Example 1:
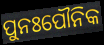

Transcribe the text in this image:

ପୁନଃପୌନିକ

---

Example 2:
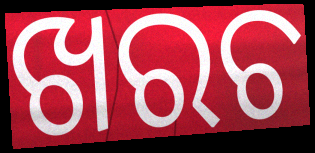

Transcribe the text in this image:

ଖରଚ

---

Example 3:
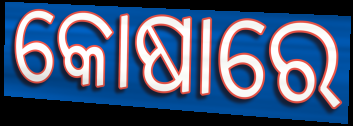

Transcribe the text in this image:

କୋଷାରେ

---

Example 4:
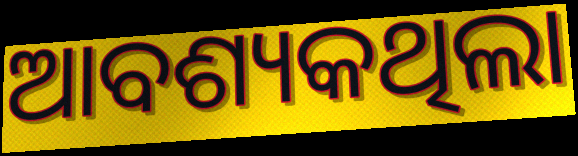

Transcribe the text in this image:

ଆବଶ୍ୟକଥିଲା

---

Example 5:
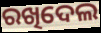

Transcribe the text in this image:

ରଖିଦେଲ